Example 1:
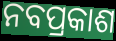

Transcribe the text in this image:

ନବପ୍ରକାଶ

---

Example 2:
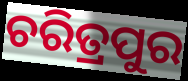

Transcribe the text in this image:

ଚରିତ୍ରପୁର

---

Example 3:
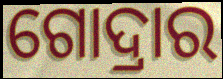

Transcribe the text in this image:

ଗୋଦ୍ରାର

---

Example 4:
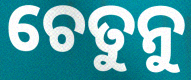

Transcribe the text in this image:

ଚେତୁନୁ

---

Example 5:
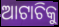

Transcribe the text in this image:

ଆଟାଚିକୁ